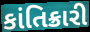
કાંતિક્રારી